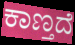
ಕಾಣ್ತದೆ